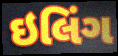
ઇલિંગ